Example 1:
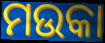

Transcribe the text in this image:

ମଉକା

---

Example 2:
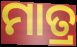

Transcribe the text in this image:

ମାତ୍ର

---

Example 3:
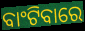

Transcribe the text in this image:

ବାଂଟିବାରେ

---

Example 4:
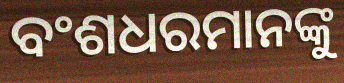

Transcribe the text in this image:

ବଂଶଧରମାନଙ୍କୁ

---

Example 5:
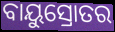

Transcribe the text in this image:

ବାୟୁସ୍ରୋତର